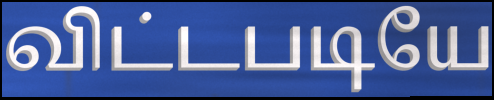
விட்டபடியே